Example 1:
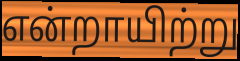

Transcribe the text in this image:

என்றாயிற்று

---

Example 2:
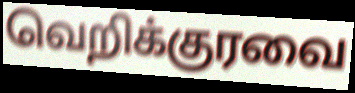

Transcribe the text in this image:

வெறிக்குரவை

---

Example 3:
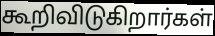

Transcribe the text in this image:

கூறிவிடுகிறார்கள்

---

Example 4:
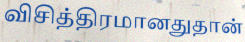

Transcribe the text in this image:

விசித்திரமானதுதான்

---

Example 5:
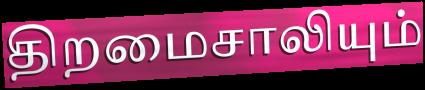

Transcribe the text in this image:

திறமைசாலியும்